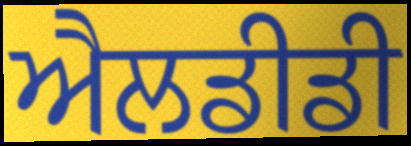
ਐਲਡੀਡੀ